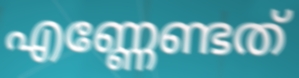
എണ്ണേണ്ടത്